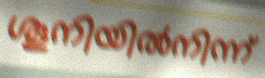
ശൂനിയിൽനിന്ന്